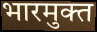
भारमुक्त